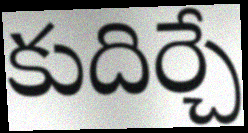
కుదిర్చే